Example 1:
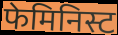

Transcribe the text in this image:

फेमिनिस्ट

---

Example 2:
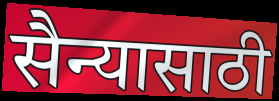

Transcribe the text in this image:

सैन्यासाठी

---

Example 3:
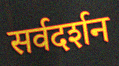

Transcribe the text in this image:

सर्वदर्शन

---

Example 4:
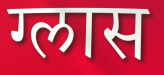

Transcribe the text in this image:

ग्लास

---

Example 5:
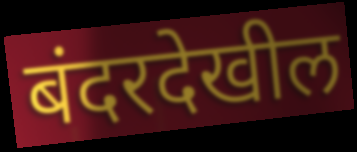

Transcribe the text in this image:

बंदरदेखील